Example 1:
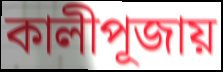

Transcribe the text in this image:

কালীপূজায়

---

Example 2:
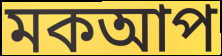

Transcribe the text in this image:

মকআপ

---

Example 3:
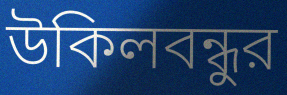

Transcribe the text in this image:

উকিলবন্ধুর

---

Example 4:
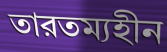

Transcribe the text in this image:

তারতম্যহীন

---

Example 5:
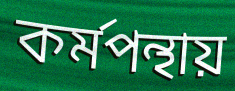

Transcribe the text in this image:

কর্মপন্থায়